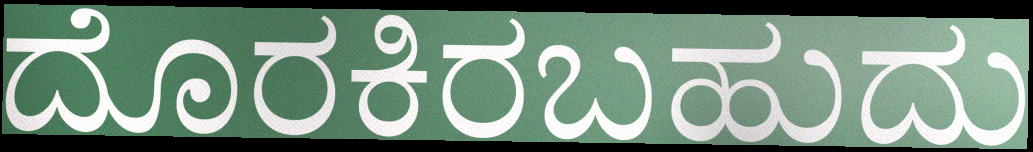
ದೊರಕಿರಬಹುದು